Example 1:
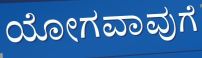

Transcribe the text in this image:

ಯೋಗವಾವುಗೆ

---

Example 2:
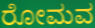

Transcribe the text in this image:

ರೋಮವ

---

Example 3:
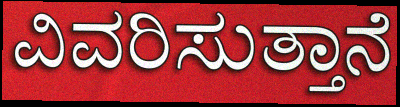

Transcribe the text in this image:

ವಿವರಿಸುತ್ತಾನೆ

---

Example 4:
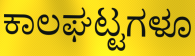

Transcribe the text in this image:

ಕಾಲಘಟ್ಟಗಳೂ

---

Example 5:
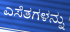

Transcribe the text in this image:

ಎಸೆತಗಳನ್ನು